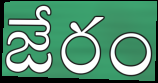
జేరం